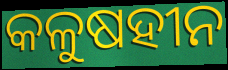
କଳୁଷହୀନ